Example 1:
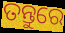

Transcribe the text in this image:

ତନ୍ତୁରେ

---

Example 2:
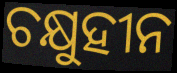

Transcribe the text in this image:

ଚକ୍ଷୁହୀନ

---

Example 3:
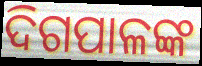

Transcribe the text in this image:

ଦିଗପାଳଙ୍କ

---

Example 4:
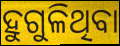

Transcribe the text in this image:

ହୁଗୁଳିଥିବା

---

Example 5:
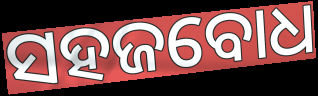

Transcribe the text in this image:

ସହଜବୋଧ